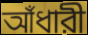
আঁধারী